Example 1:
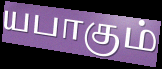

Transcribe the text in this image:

யபாகும்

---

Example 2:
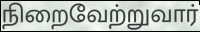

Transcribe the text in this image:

நிறைவேற்றுவார்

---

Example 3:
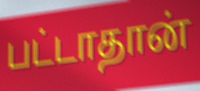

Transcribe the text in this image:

பட்டாதான்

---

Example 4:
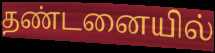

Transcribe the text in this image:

தண்டனையில்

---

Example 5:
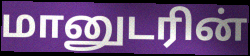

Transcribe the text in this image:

மானுடரின்